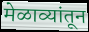
मेळाव्यांतून